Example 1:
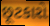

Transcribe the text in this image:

છૂટકારો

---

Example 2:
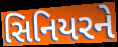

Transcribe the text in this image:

સિનિયરને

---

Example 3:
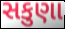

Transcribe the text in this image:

સકુણા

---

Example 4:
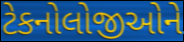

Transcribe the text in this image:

ટેકનોલોજીઓને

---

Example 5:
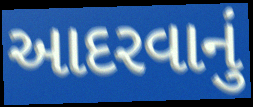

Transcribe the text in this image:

આદરવાનું